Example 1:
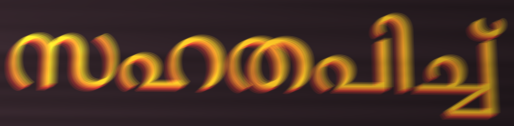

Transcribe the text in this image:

സഹതപിച്ച്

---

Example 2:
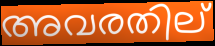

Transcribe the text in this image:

അവരതില്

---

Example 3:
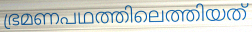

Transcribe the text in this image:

ഭ്രമണപഥത്തിലെത്തിയത്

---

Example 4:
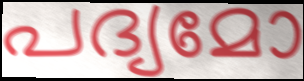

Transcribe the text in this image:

പദ്യമോ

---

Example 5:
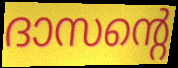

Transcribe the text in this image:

ദാസന്റെ